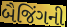
બૈજિંગની